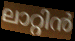
ലാറ്റിൻ